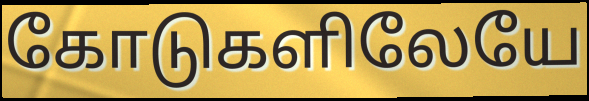
கோடுகளிலேயே